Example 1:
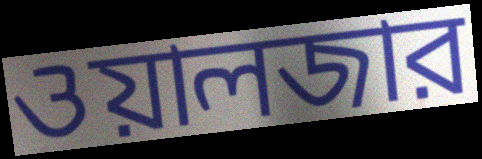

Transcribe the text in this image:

ওয়ালজার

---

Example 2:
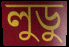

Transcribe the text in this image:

লুডু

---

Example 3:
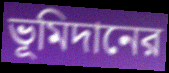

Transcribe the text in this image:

ভূমিদানের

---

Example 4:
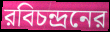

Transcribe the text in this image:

রবিচন্দ্রনের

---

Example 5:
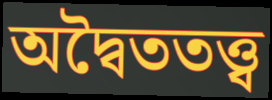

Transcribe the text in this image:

অদ্বৈততত্ত্ব